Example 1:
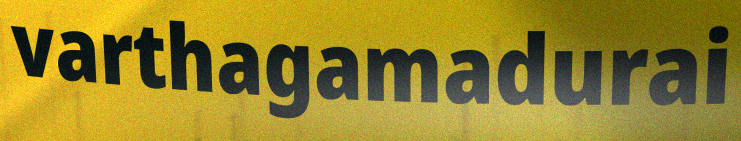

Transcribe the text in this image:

varthagamadurai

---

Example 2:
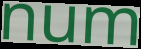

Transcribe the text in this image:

num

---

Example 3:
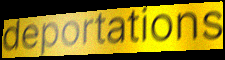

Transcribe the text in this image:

deportations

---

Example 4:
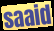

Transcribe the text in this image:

saaid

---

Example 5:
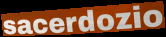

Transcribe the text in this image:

sacerdozio